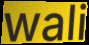
wali